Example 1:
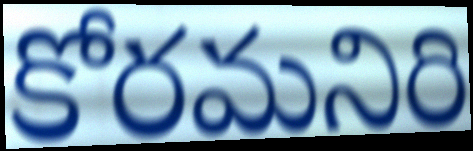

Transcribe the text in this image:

కోరమనిరి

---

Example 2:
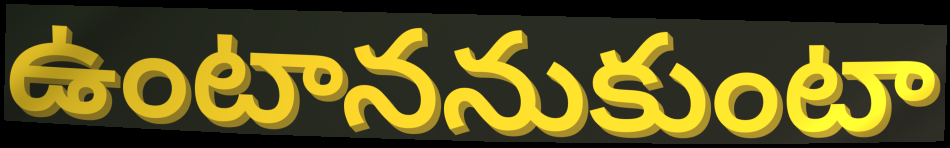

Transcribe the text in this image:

ఉంటాననుకుంటా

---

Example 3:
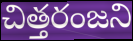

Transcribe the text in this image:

చిత్తరంజని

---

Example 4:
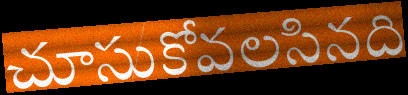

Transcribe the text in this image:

చూసుకోవలసినది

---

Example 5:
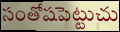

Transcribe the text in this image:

సంతోషపెట్టుచు